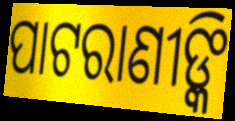
ପାଟରାଣୀଙ୍କି